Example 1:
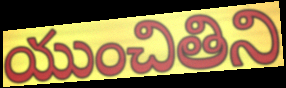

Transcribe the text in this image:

యుంచితిని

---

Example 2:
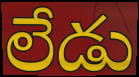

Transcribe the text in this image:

లేడు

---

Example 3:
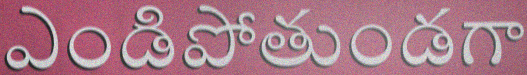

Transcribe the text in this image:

ఎండిపోతుండగా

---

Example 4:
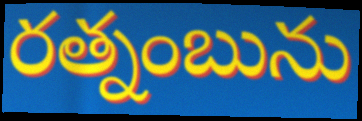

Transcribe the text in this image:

రత్నంబును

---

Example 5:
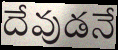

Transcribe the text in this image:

దేవుడనే